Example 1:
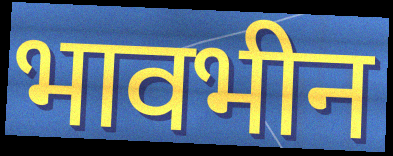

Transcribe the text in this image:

भावभीन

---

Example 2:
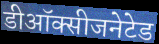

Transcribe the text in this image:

डीऑक्सीजनेटेड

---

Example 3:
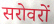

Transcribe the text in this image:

सरोवरों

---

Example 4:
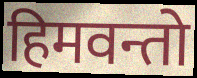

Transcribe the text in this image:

हिमवन्तो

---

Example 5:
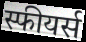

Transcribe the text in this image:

स्फीयर्स